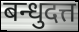
बन्धुदत्त